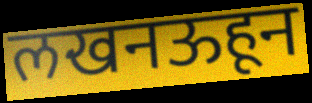
लखनऊहून